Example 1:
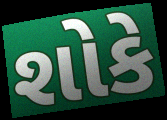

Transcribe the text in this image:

શોકે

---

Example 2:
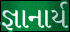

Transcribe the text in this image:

જ્ઞાનાર્ય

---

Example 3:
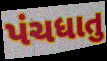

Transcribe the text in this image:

પંચધાતુ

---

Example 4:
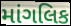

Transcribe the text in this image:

માંગલિક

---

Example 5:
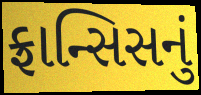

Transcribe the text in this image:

ફ્રાન્સિસનું